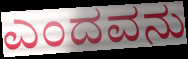
ಎಂದವನು